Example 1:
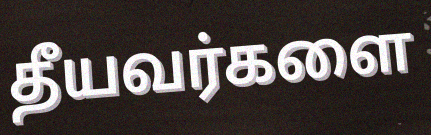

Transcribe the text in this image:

தீயவர்களை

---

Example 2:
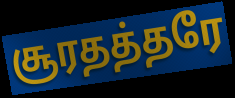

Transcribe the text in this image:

சூரதத்தரே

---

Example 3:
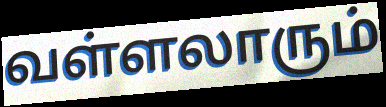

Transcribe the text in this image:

வள்ளலாரும்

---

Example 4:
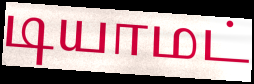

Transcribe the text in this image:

டியாமட்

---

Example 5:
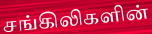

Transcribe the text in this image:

சங்கிலிகளின்